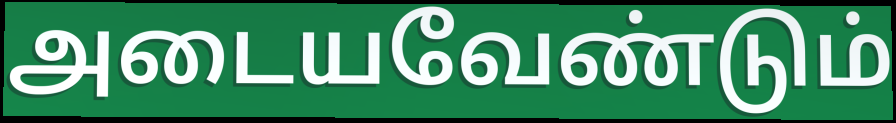
அடையவேண்டும்